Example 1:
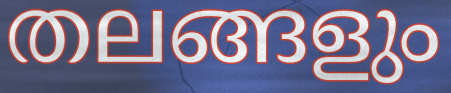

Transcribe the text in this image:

തലങ്ങളും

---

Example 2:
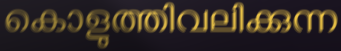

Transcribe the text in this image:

കൊളുത്തിവലിക്കുന്ന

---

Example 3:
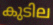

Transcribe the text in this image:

കുടില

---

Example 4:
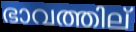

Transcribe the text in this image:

ഭാവത്തില്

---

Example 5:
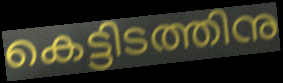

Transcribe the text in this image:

കെട്ടിടത്തിനു